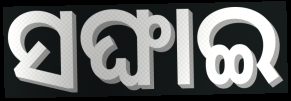
ସଙ୍ଘାଇ